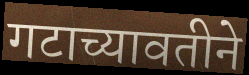
गटाच्यावतीने